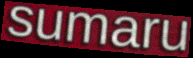
sumaru